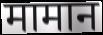
मामान